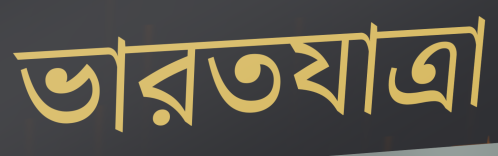
ভারতযাত্রা